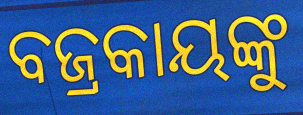
ବଜ୍ରକାୟଙ୍କୁ